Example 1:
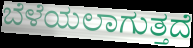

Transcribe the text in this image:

ಬೆಳೆಯಲಾಗುತ್ತದೆ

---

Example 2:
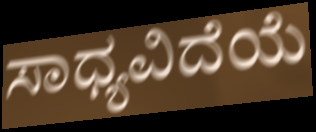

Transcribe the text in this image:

ಸಾಧ್ಯವಿದೆಯೆ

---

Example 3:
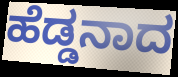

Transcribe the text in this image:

ಹೆಡ್ಡನಾದ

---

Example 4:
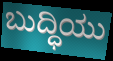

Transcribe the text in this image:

ಬುದ್ಧಿಯು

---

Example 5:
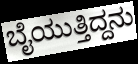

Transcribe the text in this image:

ಬೈಯುತ್ತಿದ್ದನು